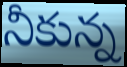
నీకున్న